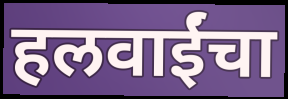
हलवाईंचा